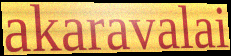
akaravalai